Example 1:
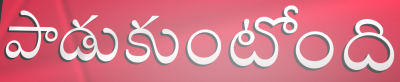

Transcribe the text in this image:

పాడుకుంటోంది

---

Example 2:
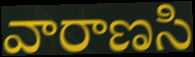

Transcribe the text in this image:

వారాణసి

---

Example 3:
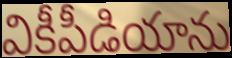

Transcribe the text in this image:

వికీపీడియాను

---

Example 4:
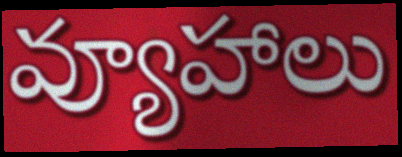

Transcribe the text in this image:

వ్యూహాలు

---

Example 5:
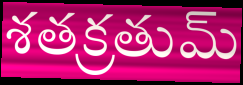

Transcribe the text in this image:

శతక్రతుమ్